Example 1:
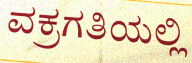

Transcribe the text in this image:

ವಕ್ರಗತಿಯಲ್ಲಿ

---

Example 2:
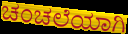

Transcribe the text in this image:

ಚಂಚಲೆಯಾಗಿ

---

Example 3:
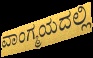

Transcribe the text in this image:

ವಾಂಗ್ಮಯದಲ್ಲಿ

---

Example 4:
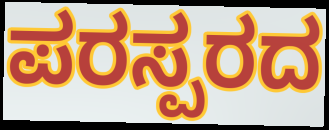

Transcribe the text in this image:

ಪರಸ್ಪರದ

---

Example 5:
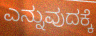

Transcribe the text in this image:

ಎನ್ನುವುದಕ್ಕೆ